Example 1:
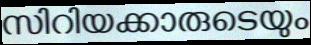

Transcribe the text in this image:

സിറിയക്കാരുടെയും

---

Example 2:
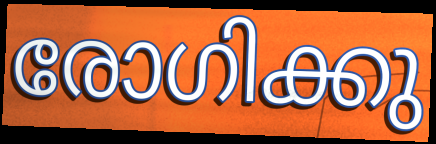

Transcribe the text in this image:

രോഗിക്കു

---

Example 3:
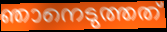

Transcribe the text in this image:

ഞാനെടുത്തത്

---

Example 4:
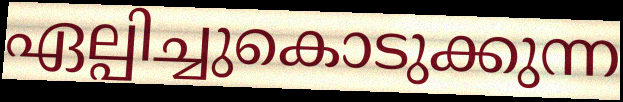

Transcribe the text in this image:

ഏല്പിച്ചുകൊടുക്കുന്ന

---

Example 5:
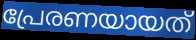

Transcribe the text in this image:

പ്രേരണയായത്